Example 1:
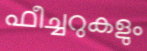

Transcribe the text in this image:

ഫീച്ചറുകളും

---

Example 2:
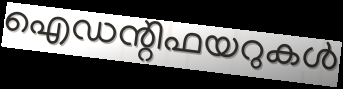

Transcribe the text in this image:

ഐഡന്റിഫയറുകൾ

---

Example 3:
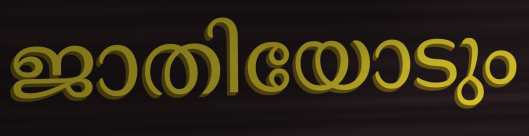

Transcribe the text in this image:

ജാതിയോടും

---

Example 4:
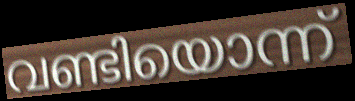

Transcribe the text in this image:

വണ്ടിയൊന്ന്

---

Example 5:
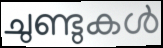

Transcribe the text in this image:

ചുണ്ടുകൾ